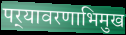
पर्यावरणाभिमुख